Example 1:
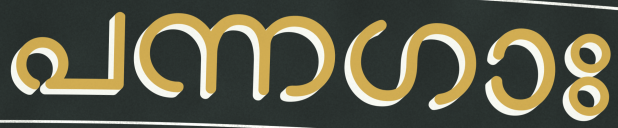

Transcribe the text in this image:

പന്നഗാഃ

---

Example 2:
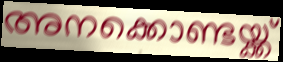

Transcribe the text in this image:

അനക്കൊണ്ടയ്ക്ക്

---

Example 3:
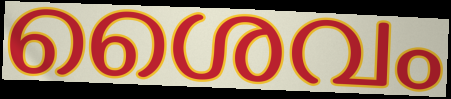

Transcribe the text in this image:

ശൈവം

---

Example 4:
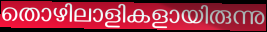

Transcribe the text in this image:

തൊഴിലാളികളായിരുന്നു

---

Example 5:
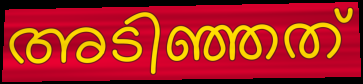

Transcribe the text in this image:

അടിഞ്ഞത്